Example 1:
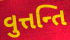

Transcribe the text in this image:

વુત્તન્તિ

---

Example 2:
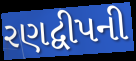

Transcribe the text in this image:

રણદ્વીપની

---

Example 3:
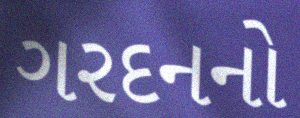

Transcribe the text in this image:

ગરદનનો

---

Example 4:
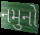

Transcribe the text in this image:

નમુનો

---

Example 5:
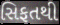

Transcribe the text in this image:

સિફતથી